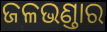
ଜଳଭଣ୍ଡାର